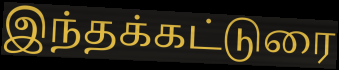
இந்தக்கட்டுரை